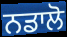
ਨਡਾਲੋ